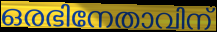
ഒരഭിനേതാവിന്